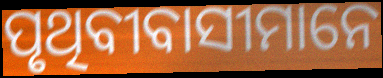
ପୃଥିବୀବାସୀମାନେ